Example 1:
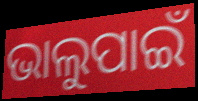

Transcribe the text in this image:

ଭାଲୁପାଇଁ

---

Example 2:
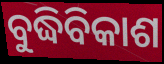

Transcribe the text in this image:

ବୁଦ୍ଧିବିକାଶ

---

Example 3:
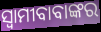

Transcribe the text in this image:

ସ୍ଵାମୀବାବାଙ୍କର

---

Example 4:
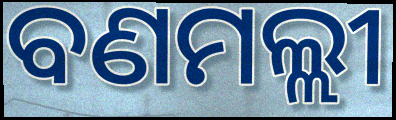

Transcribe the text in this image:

ବଣମଲ୍ଲୀ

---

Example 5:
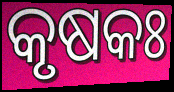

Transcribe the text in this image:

କୃଷକଃ